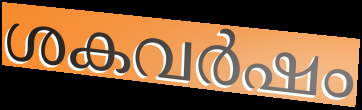
ശകവർഷം